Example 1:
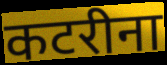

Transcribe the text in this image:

कटरीना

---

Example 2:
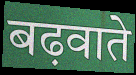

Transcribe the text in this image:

बढ़वाते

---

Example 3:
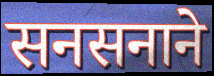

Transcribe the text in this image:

सनसनाने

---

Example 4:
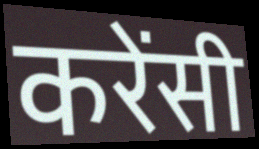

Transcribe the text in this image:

करेंसी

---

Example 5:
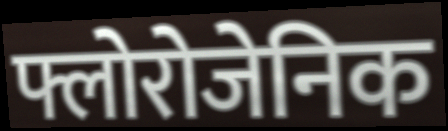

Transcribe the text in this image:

फ्लोरोजेनिक